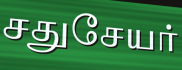
சதுசேயர்